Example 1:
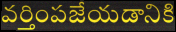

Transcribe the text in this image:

వర్తింపజేయడానికి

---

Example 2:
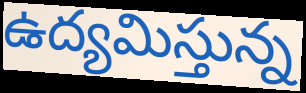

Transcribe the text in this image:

ఉద్యమిస్తున్న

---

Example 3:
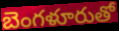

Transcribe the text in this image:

బెంగళూరుతో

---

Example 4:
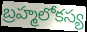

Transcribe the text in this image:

బ్రహ్మలోకస్య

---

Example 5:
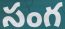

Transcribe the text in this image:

సంగ